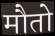
मौतो